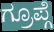
ಗ್ರೂಪ್ಗೆ